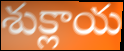
శుక్లాయ